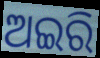
ଅଇରି